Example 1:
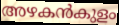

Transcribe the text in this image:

അഴകൻകുളം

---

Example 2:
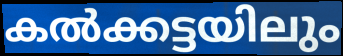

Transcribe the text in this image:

കൽക്കട്ടയിലും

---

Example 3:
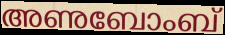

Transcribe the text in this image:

അണുബോംബ്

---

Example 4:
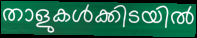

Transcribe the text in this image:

താളുകൾക്കിടയിൽ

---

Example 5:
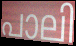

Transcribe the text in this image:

പാലി